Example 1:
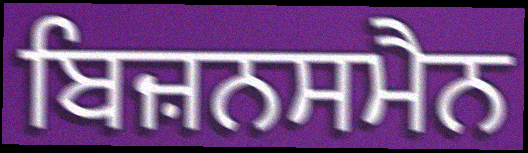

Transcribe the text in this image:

ਬਿਜ਼ਨਸਮੈਨ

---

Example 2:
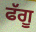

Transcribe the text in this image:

ਫੱਗੂ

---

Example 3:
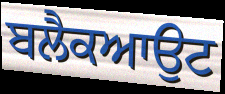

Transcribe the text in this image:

ਬਲੈਕਆਉਟ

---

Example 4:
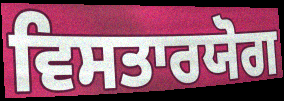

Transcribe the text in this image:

ਵਿਸਤਾਰਯੋਗ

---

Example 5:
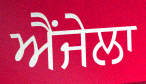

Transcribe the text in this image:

ਐਂਜੇਲਾ